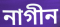
নাগীন